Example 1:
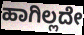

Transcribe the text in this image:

ಹಾಗಿಲ್ಲದೇ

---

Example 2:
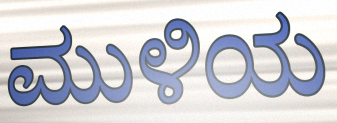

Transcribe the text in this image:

ಮುಳಿಯ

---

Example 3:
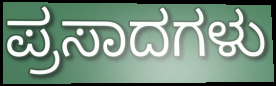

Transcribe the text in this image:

ಪ್ರಸಾದಗಳು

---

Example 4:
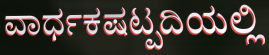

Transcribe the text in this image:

ವಾರ್ಧಕಷಟ್ಪದಿಯಲ್ಲಿ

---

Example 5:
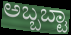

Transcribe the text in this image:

ಅಬ್ಬಬ್ಟಾ